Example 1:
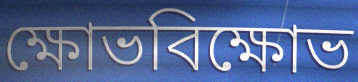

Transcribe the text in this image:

ক্ষোভবিক্ষোভ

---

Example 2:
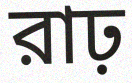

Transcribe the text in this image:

রাঢ়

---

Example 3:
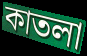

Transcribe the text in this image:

কাতলা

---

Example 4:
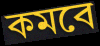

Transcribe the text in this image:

কমবে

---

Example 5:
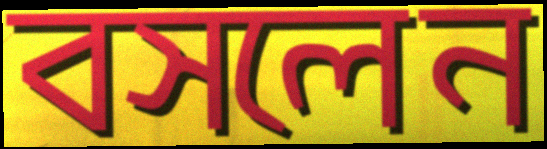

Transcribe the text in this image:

বসলেন